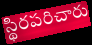
స్థిరపరిచారు